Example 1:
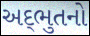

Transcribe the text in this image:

અદ્‌ભુતનો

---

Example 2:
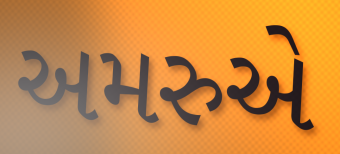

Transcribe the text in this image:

અમરુએ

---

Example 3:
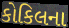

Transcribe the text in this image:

કોકિલના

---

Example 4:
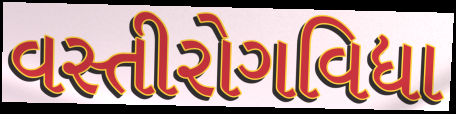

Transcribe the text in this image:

વસ્તીરોગવિદ્યા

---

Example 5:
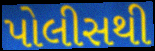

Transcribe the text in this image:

પોલીસથી